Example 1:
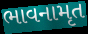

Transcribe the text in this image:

ભાવનામૃત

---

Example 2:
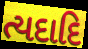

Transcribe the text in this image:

ત્યદાદિ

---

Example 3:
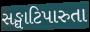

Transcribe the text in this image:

સઙ્ઘાટિપારુતા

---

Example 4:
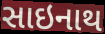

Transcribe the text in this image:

સાઇનાથ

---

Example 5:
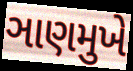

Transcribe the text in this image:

ઞાણમુખે